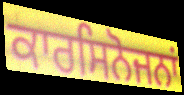
ਕਾਰਸਿਨੋਜਨਾਂ